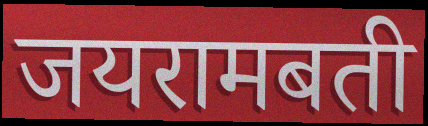
जयरामबती